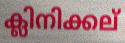
ക്ലിനിക്കല്